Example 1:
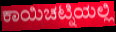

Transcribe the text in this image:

ಕಾಯಿಚಟ್ನಿಯಲ್ಲಿ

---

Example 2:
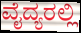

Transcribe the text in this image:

ವೈದ್ಯರಲ್ಲಿ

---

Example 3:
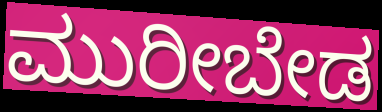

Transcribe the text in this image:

ಮುರೀಬೇಡ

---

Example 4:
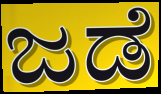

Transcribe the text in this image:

ಜಡೆ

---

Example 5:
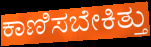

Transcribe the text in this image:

ಕಾಣಿಸಬೇಕಿತ್ತು